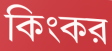
কিংকর